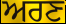
ਅਰਣ